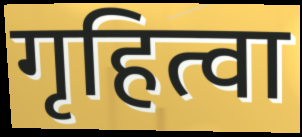
गृहित्वा